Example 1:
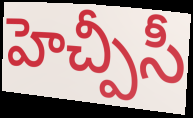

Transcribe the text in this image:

హెచ్పీసీ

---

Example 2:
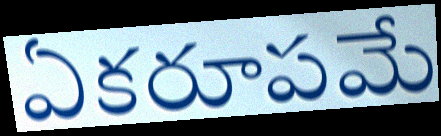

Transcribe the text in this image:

ఏకరూపమే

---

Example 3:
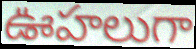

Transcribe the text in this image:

ఊహలుగా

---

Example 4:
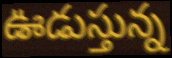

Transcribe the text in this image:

ఊడుస్తున్న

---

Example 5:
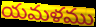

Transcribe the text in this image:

యమళము